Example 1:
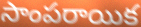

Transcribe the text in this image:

సాంపరాయిక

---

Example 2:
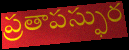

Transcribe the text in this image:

ప్రతాపస్ఫుర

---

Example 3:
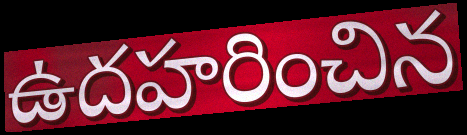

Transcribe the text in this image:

ఉదహరించిన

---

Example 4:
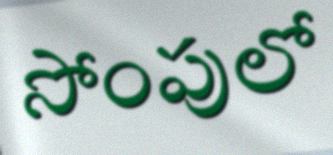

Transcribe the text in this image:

సోంపులో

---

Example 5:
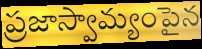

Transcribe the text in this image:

ప్రజాస్వామ్యంపైన